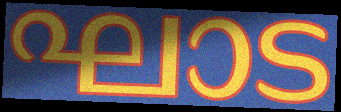
ഘാട